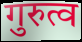
गुरुत्व